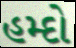
હમ્દો